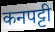
कनपट्टी